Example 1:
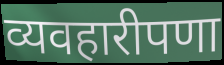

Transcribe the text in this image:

व्यवहारीपणा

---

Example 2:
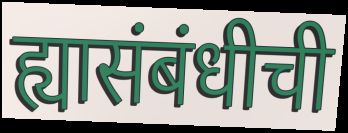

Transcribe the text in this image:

ह्यासंबंधीची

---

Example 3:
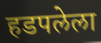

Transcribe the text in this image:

हडपलेला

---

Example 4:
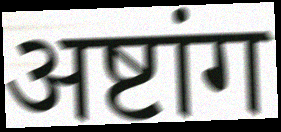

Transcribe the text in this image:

अष्टांग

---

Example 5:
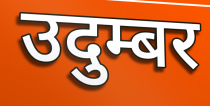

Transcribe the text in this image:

उदुम्बर